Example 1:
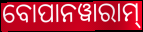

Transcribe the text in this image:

ବୋପାନୱାରାମ୍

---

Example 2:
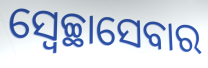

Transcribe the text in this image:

ସ୍ୱେଚ୍ଛାସେବାର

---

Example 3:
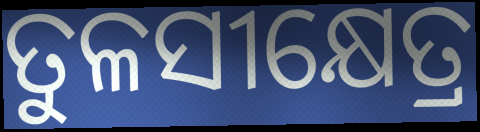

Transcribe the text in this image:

ତୁଳସୀକ୍ଷେତ୍ର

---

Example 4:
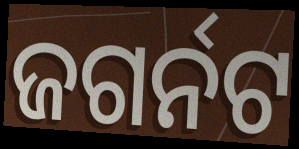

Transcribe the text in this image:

ଜଗର୍ନଟ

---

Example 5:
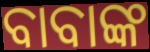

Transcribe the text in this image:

ବାବାଙ୍କ